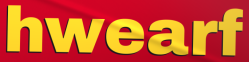
hwearf